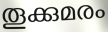
തൂക്കുമരം